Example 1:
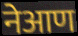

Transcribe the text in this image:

नेआण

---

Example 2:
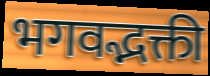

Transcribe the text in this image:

भगवद्भक्ती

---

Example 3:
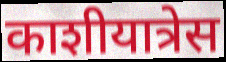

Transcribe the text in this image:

काशीयात्रेस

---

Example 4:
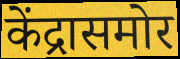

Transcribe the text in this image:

केंद्रासमोर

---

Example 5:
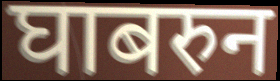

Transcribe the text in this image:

घाबरुन